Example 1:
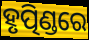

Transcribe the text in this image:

ହୃତ୍ପିଣ୍ଡରେ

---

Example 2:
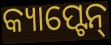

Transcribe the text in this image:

କ୍ୟାପ୍ଟେନ୍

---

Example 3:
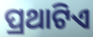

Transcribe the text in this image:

ପ୍ରଥାଟିଏ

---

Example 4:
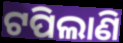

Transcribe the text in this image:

ଟପିଲାଣି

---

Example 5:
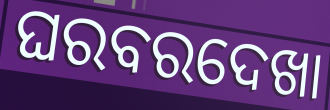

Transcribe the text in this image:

ଘରବରଦେଖା